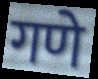
गणे